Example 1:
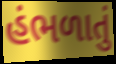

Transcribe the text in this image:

હંભળાતું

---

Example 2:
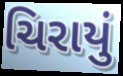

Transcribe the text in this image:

ચિરાયું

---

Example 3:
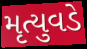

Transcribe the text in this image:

મૃત્યુવડે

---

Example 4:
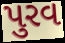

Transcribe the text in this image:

પુરવ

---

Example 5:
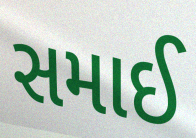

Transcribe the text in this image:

સમાઈ